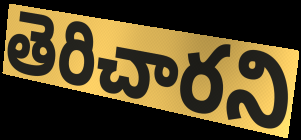
తెరిచారని